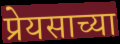
प्रेयसाच्या